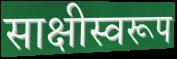
साक्षीस्वरूप